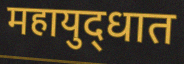
महायुद्धात